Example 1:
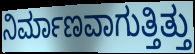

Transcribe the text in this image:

ನಿರ್ಮಾಣವಾಗುತ್ತಿತ್ತು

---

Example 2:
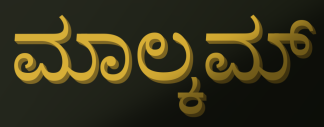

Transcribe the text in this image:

ಮಾಲ್ಕಮ್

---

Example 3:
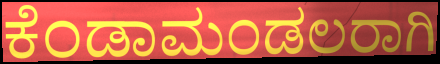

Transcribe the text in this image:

ಕೆಂಡಾಮಂಡಲರಾಗಿ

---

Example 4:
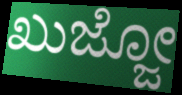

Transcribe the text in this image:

ಖುಜ್ಜೋ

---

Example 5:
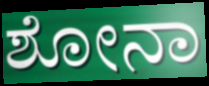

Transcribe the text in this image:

ಶೋನಾ